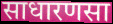
साधारणसा